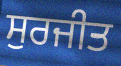
ਸੁਰਜੀਤ